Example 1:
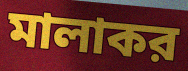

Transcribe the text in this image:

মালাকর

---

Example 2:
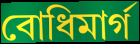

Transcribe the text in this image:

বোধিমার্গ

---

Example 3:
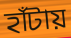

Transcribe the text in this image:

হাঁটায়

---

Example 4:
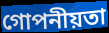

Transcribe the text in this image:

গোপনীয়তা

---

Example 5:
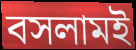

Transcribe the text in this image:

বসলামই